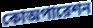
কোঅপারেশন